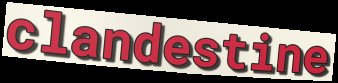
clandestine